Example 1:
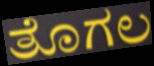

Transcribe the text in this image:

ತೊಗಲ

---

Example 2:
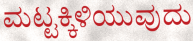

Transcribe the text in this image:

ಮಟ್ಟಕ್ಕಿಳಿಯುವುದು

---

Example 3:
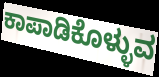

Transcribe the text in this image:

ಕಾಪಾಡಿಕೊಳ್ಳುವ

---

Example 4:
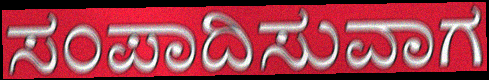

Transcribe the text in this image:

ಸಂಪಾದಿಸುವಾಗ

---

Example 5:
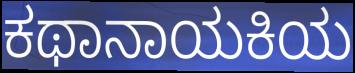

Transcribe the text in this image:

ಕಥಾನಾಯಕಿಯ